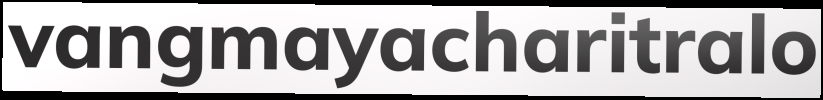
vangmayacharitralo